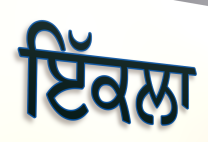
ਇੱਕਲਾ